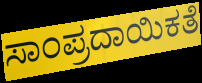
ಸಾಂಪ್ರದಾಯಿಕತೆ